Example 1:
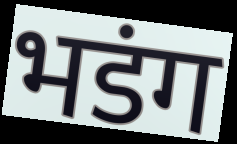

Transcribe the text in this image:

भडंग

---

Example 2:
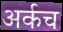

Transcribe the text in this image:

अर्कच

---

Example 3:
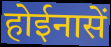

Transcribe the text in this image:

होईनासें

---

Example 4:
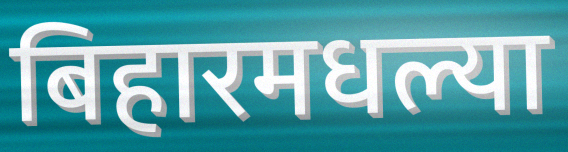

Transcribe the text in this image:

बिहारमधल्या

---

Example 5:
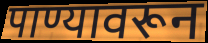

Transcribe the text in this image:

पाण्यावरून